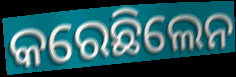
କରେଛିଲେନ